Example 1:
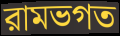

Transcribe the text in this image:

রামভগত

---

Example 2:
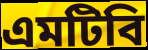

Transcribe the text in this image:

এমটিবি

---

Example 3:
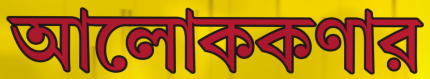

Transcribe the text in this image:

আলোককণার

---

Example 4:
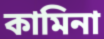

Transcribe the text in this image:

কামিনা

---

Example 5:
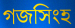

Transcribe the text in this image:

গজসিংহ